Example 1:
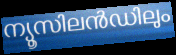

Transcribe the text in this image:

ന്യൂസിലൻഡിലും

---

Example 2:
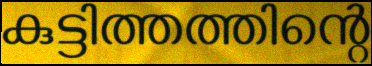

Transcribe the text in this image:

കുട്ടിത്തത്തിന്റെ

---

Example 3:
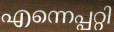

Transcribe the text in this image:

എന്നെപ്പറ്റി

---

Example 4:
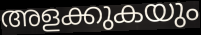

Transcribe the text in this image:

അളക്കുകയും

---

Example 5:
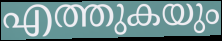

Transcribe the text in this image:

എത്തുകയും